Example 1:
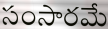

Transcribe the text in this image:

సంసారమే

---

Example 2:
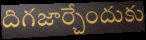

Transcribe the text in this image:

దిగజార్చేందుకు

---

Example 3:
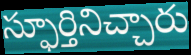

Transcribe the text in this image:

స్ఫూర్తినిచ్చారు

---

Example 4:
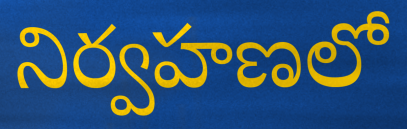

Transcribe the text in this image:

నిర్వహణలో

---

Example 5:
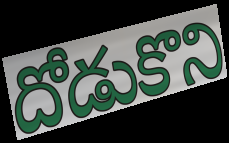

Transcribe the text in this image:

దోడుకొని